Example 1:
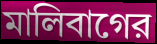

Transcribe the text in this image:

মালিবাগের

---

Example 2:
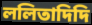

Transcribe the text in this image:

ললিতাদিদি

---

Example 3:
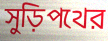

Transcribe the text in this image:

সুড়িপথের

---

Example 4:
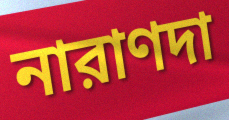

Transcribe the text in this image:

নারাণদা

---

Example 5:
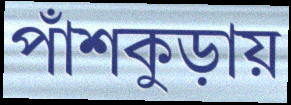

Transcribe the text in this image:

পাঁশকুড়ায়